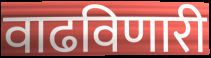
वाढविणारी